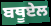
ਬਥੂਏਲ